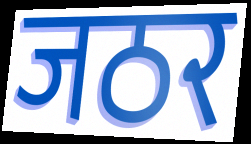
जठर